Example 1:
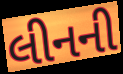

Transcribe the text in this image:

લીનની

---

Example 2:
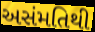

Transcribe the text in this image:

અસંમતિથી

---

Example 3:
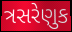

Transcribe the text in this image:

ત્રસરેણુક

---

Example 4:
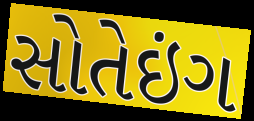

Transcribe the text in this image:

સોતેઇંગ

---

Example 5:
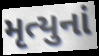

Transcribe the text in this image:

મૃત્યુનાં